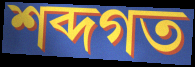
শব্দগত